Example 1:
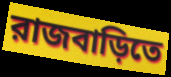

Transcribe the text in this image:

রাজবাড়িতে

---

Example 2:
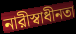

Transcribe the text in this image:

নারীস্বাধীনতা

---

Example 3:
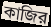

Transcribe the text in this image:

কাজির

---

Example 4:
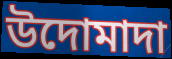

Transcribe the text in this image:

উদোমাদা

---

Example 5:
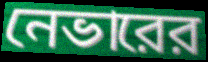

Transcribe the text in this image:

নেভারের